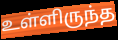
உள்ளிருந்த